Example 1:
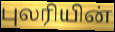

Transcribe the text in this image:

புலரியின்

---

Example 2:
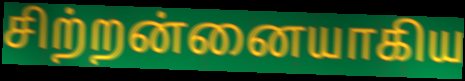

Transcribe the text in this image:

சிற்றன்னையாகிய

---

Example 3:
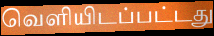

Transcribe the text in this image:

வெளியிடப்பட்டது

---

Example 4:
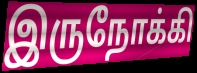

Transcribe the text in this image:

இருநோக்கி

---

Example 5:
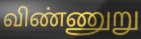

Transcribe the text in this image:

விண்ணுறு